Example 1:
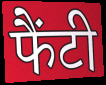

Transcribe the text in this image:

फैंटी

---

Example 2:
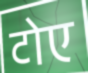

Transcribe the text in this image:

टोए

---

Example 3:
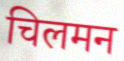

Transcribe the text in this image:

चिलमन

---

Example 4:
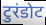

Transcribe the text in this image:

टुरंडोट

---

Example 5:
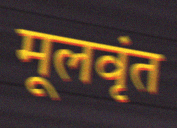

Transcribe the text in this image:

मूलवृंत